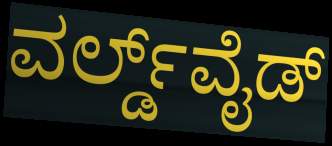
ವರ್ಲ್ಡ್‌ವೈಡ್